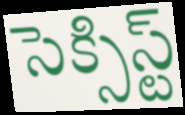
సెక్సిస్ట్